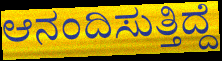
ಆನಂದಿಸುತ್ತಿದ್ದೆ